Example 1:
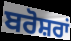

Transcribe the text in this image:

ਬਰੋਸ਼ਰਾਂ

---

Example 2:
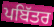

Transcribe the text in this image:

ਪਬਿੱਤਰ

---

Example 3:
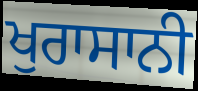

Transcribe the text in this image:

ਖੁਰਾਸਾਨੀ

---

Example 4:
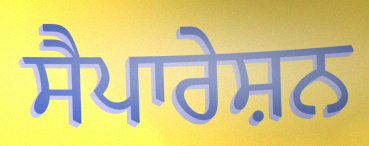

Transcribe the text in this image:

ਸੈਪਾਰੇਸ਼ਨ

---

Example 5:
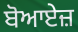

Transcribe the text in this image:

ਬੋਆਏਜ਼